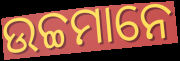
ଉଚ୍ଚମାନେ